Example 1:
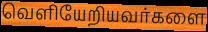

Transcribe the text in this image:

வெளியேறியவர்களை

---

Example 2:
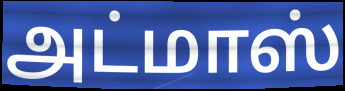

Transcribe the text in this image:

அட்மாஸ்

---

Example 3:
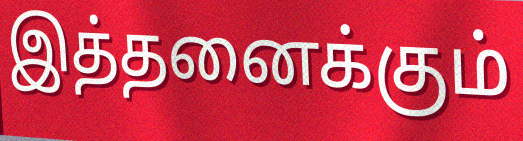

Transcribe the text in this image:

இத்தனைக்கும்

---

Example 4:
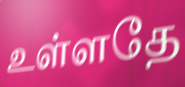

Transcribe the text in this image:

உள்ளதே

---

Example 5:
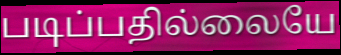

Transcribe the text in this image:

படிப்பதில்லையே